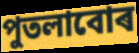
পুতলাবোৰ